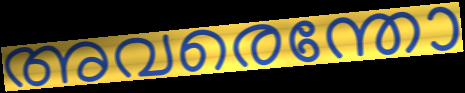
അവരെന്തോ